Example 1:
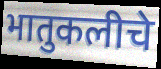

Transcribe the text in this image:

भातुकलीचे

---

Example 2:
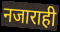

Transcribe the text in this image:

नजाराही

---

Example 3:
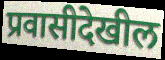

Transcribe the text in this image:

प्रवासीदेखील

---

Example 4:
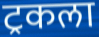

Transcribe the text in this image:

ट्रकला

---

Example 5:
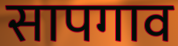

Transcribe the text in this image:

सापगाव